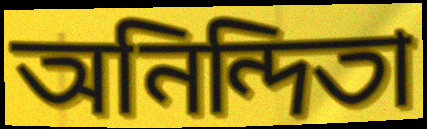
অনিন্দিতা